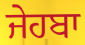
ਜੇਹਬਾ